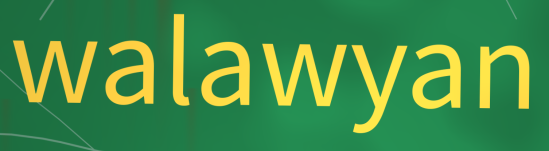
walawyan